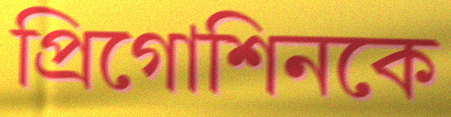
প্রিগোশিনকে